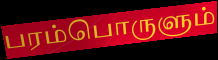
பரம்பொருளும்